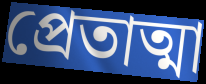
প্রেতাত্মা